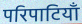
परिपाटियाँ